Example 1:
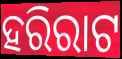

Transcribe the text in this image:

ହରିରାଟ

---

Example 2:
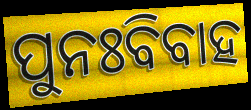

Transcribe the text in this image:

ପୁନଃବିବାହ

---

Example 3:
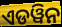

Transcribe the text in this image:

ଏଡୱିନ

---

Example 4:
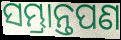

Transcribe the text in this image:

ସମ୍ଭ୍ରାନ୍ତପଣ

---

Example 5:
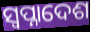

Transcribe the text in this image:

ସ୍ଵପ୍ନାଦେଶ